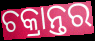
ଚକ୍ରାନ୍ତର